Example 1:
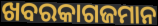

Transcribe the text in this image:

ଖବରକାଗଜମାନ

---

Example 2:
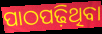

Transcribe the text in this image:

ପାଠପଢ଼ିଥିବା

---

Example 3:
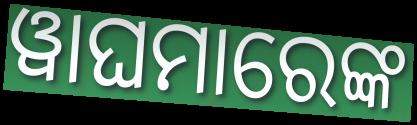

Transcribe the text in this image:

ୱାଘମାରେଙ୍କ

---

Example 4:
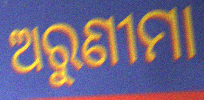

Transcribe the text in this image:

ଅରୁଣୀମା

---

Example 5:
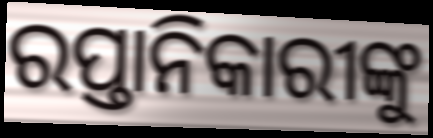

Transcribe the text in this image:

ରପ୍ତାନିକାରୀଙ୍କୁ